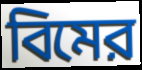
বিমের